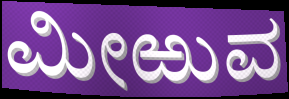
ಮೀಱುವ